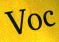
Voc